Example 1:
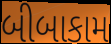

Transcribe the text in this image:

બીબાકામ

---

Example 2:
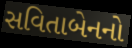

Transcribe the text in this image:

સવિતાબેનનો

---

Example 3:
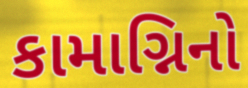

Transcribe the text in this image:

કામાગ્નિનો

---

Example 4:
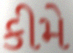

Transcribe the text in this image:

કીમે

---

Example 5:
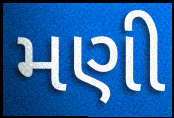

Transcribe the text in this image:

મણી